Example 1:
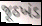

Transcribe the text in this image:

જૂઠખંડ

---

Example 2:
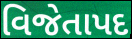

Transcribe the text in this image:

વિજેતાપદ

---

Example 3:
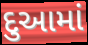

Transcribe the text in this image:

દુઆમાં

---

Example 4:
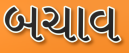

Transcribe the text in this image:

બચાવ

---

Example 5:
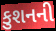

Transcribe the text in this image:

કુશનની